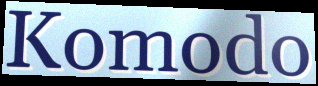
Komodo